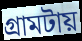
গ্রামটায়